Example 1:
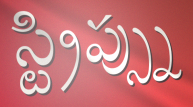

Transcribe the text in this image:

స్ట్రిప్స్ను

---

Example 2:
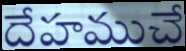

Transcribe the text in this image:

దేహముచే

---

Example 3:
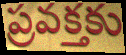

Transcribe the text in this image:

ప్రవక్తకు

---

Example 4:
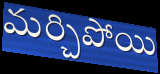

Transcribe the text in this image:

మర్చిపోయి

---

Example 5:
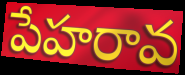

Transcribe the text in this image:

పేహరావ